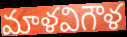
మాళవిగౌళ